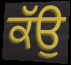
ਕੱਉ